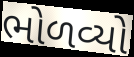
ભોળવ્યો